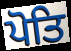
ਪੋਤਿ